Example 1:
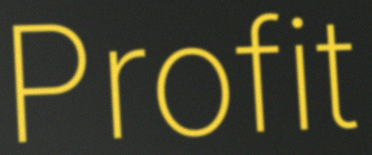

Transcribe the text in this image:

Profit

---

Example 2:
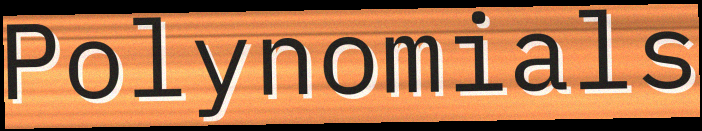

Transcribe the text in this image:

Polynomials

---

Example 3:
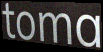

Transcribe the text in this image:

toma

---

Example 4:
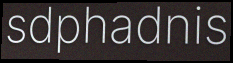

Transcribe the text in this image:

sdphadnis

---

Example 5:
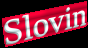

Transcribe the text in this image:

Slovin